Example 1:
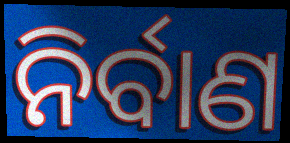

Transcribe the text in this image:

ନିର୍ବାଣ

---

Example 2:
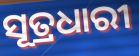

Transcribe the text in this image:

ସୂତ୍ରଧାରୀ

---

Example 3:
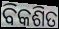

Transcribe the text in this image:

ବିକଶିତ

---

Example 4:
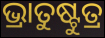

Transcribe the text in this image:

ଭ୍ରାତୁଷ୍ଟୁତ୍ର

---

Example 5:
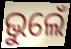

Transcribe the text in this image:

ଭୁଲେଁ